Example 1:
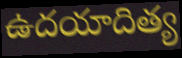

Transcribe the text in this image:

ఉదయాదిత్య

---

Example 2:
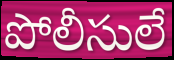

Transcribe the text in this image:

పోలీసులే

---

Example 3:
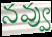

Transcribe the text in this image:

నవ్వు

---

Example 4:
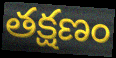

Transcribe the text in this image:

తక్షణం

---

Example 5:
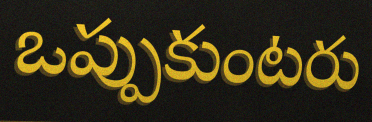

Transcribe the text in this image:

ఒప్పుకుంటరు